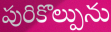
పురికొల్పును